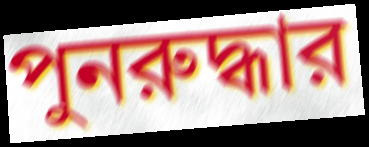
পুনরুদ্ধার